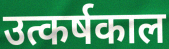
उत्कर्षकाल